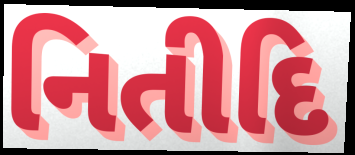
નિતીદિ